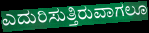
ಎದುರಿಸುತ್ತಿರುವಾಗಲೂ